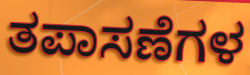
ತಪಾಸಣೆಗಳ